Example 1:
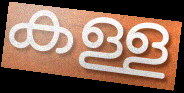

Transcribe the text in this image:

കള്ള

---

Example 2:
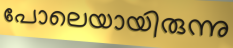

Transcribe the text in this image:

പോലെയായിരുന്നു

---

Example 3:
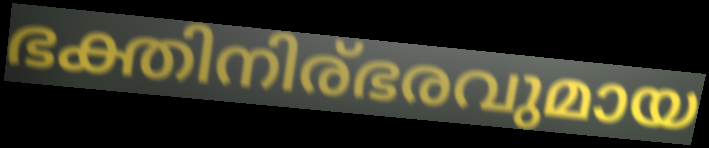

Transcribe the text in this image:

ഭക്തിനിര്ഭരവുമായ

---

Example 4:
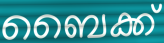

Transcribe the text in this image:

ബൈക്ക്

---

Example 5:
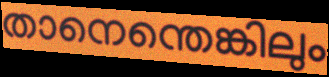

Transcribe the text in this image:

താനെന്തെങ്കിലും